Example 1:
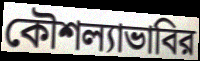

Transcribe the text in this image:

কৌশল্যাভাবির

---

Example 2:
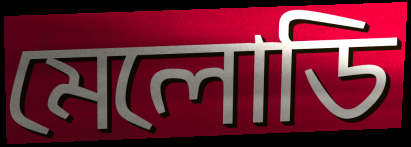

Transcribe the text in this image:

মেলোডি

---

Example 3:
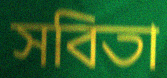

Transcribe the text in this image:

সবিতা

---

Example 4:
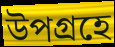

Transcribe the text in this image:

উপগ্রহে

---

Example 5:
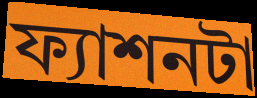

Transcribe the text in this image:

ফ্যাশনটা